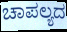
ಚಾಪಲ್ಯದ